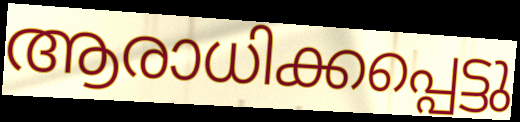
ആരാധിക്കപ്പെട്ടു